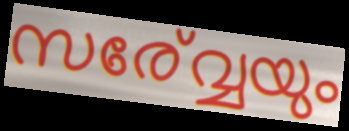
സര്വ്വേയും